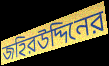
জহিরউদ্দিনের